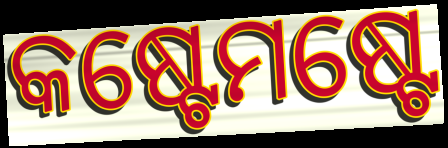
କଷ୍ଟେମଷ୍ଟେ